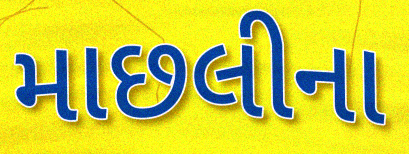
માછલીના